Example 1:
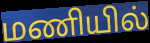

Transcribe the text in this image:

மணியில்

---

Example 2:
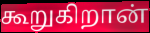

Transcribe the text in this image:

கூறுகிறான்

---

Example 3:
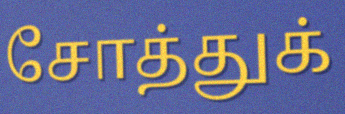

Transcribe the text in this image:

சோத்துக்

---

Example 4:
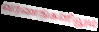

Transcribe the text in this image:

வர்ணங்களிலும்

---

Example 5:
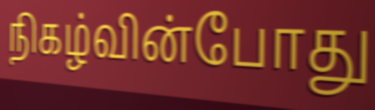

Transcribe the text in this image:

நிகழ்வின்போது